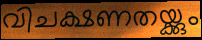
വിചക്ഷണതയ്ക്കും